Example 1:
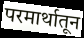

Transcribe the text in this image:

परमार्थातून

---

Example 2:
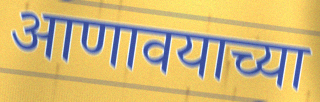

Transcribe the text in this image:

आणावयाच्या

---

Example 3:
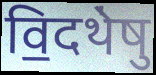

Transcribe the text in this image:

वि॒दथे॑षु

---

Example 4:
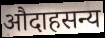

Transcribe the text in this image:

औदाहसन्य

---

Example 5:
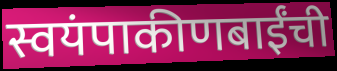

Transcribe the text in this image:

स्वयंपाकीणबाईंची